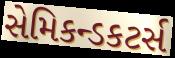
સેમિકન્ડકટર્સ